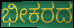
ಭೀಕರದ